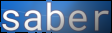
saber